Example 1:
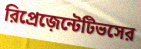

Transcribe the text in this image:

রিপ্রেজ়েন্টেটিভসের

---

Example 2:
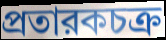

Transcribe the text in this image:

প্রতারকচক্র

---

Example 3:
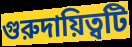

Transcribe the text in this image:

গুরুদায়িত্বটি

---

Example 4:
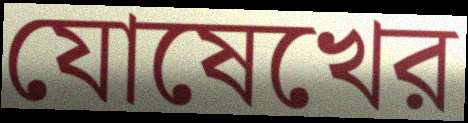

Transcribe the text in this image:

যোষেখের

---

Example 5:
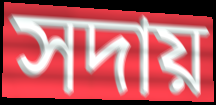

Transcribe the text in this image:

সদায়